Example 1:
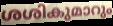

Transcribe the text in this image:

ശശികുമാറും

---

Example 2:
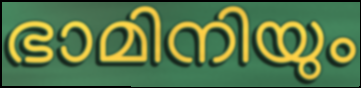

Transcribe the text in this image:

ഭാമിനിയും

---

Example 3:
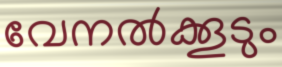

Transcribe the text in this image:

വേനൽക്കൂടും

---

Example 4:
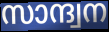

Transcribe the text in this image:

സാന്ദ്വന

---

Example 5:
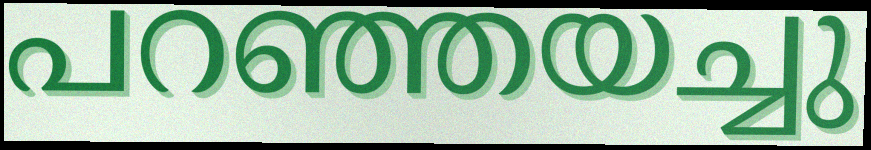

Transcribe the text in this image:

പറഞ്ഞയച്ചു